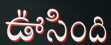
ఊసింది